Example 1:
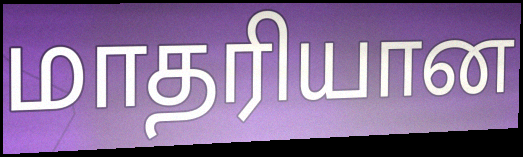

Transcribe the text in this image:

மாதரியான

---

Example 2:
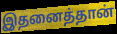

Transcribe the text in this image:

இதனைத்தான்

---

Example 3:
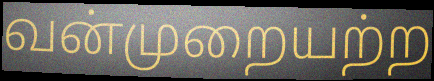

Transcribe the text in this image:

வன்முறையற்ற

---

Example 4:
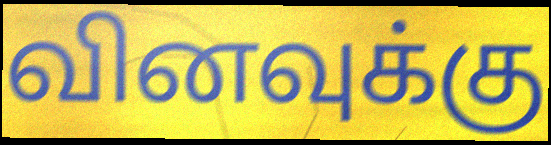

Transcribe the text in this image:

வினவுக்கு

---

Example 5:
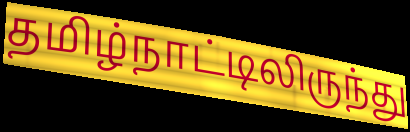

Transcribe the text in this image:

தமிழ்நாட்டிலிருந்து